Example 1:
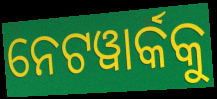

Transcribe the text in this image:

ନେଟୱାର୍କକୁ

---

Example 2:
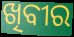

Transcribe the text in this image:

ଖିବୀର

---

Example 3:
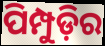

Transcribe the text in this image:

ପିମ୍ପୁଡ଼ିର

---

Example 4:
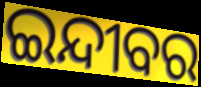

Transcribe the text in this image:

ଇନ୍ଦୀବର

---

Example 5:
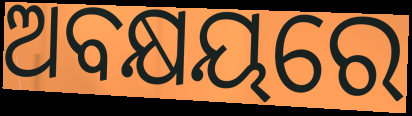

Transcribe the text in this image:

ଅବକ୍ଷୟରେ